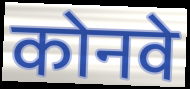
कोनवे